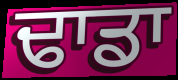
ਢਾਡਾ